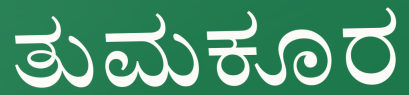
ತುಮಕೂರ